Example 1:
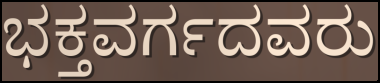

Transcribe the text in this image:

ಭಕ್ತವರ್ಗದವರು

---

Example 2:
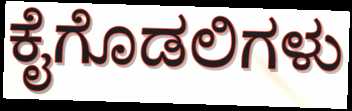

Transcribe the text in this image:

ಕೈಗೊಡಲಿಗಳು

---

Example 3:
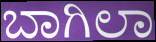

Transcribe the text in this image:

ಬಾಗಿಲಾ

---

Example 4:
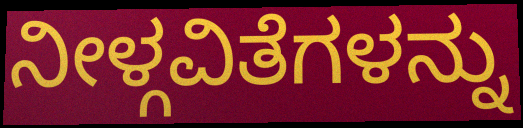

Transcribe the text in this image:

ನೀಳ್ಗವಿತೆಗಳನ್ನು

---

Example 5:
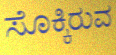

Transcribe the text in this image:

ಸೊಕ್ಕಿರುವ